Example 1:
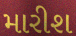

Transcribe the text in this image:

મારીશ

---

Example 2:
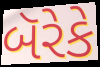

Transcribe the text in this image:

બૅરેકે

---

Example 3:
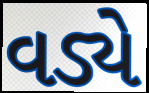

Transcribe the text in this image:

વડ્યે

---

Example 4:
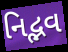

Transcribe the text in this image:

નિદ્ભવ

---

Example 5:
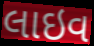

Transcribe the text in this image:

લાઇવ